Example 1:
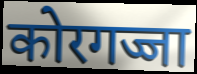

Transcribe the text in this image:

कोरगज्जा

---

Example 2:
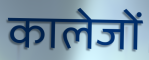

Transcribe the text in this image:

कालेजों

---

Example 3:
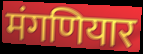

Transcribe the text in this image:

मंगणियार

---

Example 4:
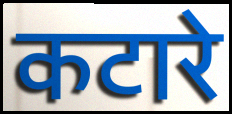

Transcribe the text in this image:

कटारे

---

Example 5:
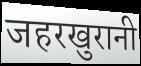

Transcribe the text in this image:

जहरखुरानी